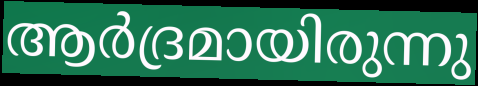
ആർദ്രമായിരുന്നു